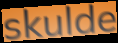
skulde